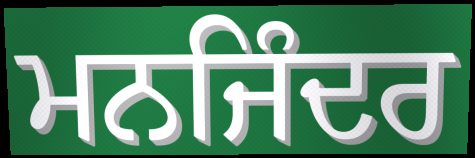
ਮਨਜਿੰਦਰ